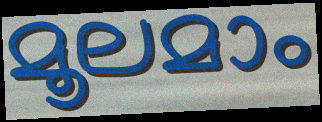
മൂലമാം